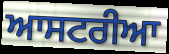
ਆਸਟਰੀਆ